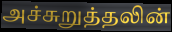
அச்சுறுத்தலின்